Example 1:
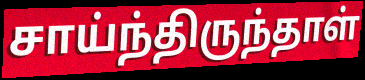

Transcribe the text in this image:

சாய்ந்திருந்தாள்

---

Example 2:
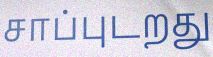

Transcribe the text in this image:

சாப்புடறது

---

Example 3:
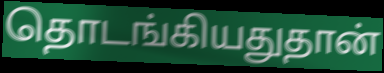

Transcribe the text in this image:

தொடங்கியதுதான்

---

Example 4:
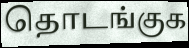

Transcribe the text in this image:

தொடங்குக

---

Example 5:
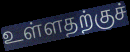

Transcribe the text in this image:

உள்ளதற்குச்